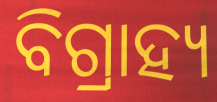
ବିଗ୍ରାହ୍ୟ